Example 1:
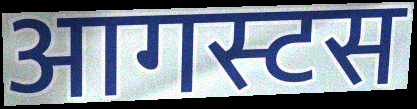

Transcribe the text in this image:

आगस्टस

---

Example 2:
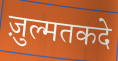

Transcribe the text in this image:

ज़ुल्मतकदे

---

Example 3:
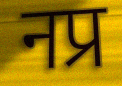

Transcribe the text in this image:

नप्र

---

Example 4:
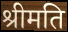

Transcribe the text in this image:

श्रीमति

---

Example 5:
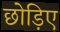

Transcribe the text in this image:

छोड़िए